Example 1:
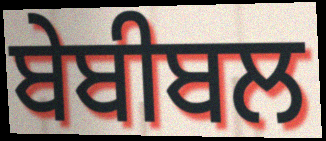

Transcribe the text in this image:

ਬੇਬੀਬਲ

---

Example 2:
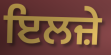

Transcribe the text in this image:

ਇਲਜ਼ੇ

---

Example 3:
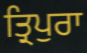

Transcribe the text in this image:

ਤ੍ਰਿਪੁਰਾ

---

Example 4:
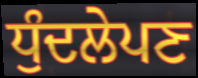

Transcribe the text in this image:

ਧੁੰਦਲੇਪਣ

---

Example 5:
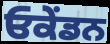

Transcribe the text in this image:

ਓਕੇਂਡਨ